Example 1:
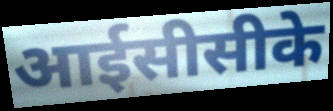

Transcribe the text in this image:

आईसीसीके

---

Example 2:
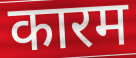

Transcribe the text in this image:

कारम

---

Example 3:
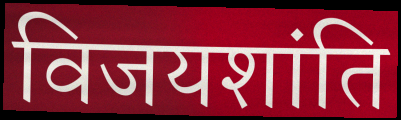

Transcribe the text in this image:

विजयशांति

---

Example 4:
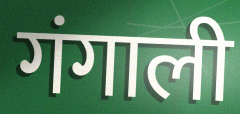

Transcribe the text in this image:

गंगाली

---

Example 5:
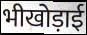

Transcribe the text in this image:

भीखोड़ाई